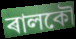
ৰালকৌ